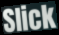
Slick